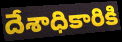
దేశాధికారికి